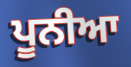
ਪੂਨੀਆ